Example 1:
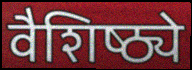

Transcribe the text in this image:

वैशिष्ठ्ये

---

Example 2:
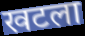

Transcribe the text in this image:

खटला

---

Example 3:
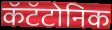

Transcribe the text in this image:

कॅटॅटोनिक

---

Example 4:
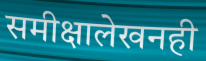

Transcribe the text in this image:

समीक्षालेखनही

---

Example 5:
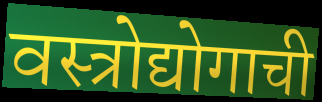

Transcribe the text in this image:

वस्त्रोद्योगाची